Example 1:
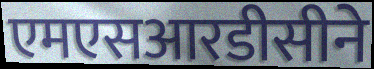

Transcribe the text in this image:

एमएसआरडीसीने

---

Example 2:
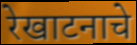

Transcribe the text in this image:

रेखाटनाचे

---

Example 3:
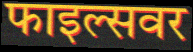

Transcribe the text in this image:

फाइल्सवर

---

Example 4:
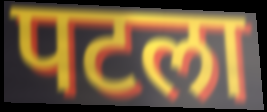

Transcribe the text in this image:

पटला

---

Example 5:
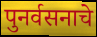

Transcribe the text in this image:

पुनर्वसनाचे